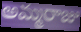
అమ్మరాజు